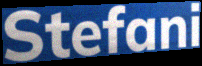
Stefani